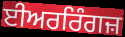
ਈਅਰਰਿੰਗਜ਼